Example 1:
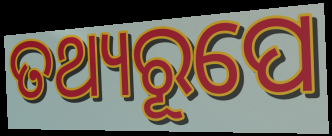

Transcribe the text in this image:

ତଥ୍ୟରୂପେ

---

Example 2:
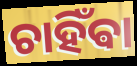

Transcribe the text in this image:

ଚାହିଁଵା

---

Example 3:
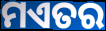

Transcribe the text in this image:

ମଏତର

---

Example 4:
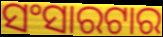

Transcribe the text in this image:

ସଂସାରଟାର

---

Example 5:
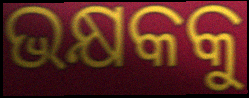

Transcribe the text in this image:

ଭକ୍ଷକକୁ